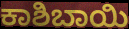
ಕಾಶಿಬಾಯಿ